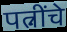
पत्नींचे